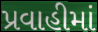
પ્રવાહીમાં